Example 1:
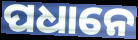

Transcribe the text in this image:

ପଧାନେ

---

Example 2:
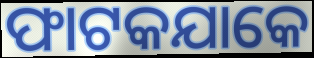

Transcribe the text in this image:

ଫାଟକଯାକେ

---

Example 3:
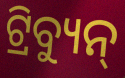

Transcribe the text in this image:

ଟ୍ରିବ୍ୟୁନ୍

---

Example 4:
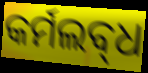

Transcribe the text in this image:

କର୍ମଲବ୍‌ଧ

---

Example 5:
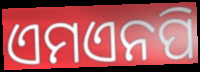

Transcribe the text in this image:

ଏମଏନପି